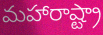
మహారాష్ట్రా